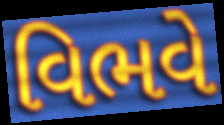
વિભવે